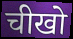
चीखो